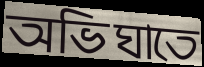
অভিঘাতে